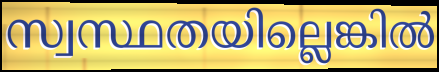
സ്വസ്ഥതയില്ലെങ്കിൽ